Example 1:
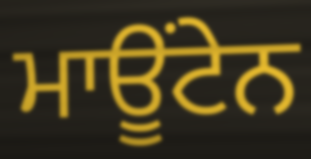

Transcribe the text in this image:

ਮਾਊਂਟੇਨ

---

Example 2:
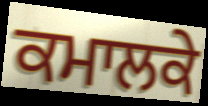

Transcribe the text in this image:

ਕਮਾਲਕੇ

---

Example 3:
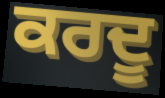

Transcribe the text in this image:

ਕਰਦੂ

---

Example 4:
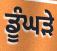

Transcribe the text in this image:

ਡੂੰਘੜੇ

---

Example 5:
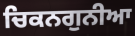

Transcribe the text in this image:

ਚਿਕਨਗੁਨੀਆ